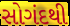
સોગંદથી